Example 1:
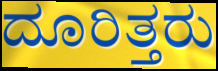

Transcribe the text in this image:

ದೂರಿತ್ತರು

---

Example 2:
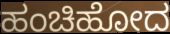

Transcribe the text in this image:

ಹಂಚಿಹೋದ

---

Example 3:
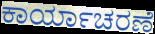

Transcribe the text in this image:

ಕಾರ್ಯಾಚರಣೆ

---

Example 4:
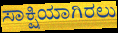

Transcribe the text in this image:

ಸಾಕ್ಷಿಯಾಗಿರಲು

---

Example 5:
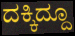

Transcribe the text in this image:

ದಕ್ಕಿದ್ದೂ